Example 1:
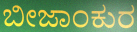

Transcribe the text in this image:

ಬೀಜಾಂಕುರ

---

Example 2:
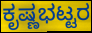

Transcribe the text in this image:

ಕೃಷ್ಣಭಟ್ಟರ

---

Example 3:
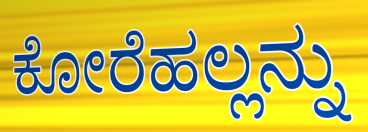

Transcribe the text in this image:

ಕೋರೆಹಲ್ಲನ್ನು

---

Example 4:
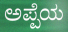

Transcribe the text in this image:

ಅಪ್ಪೆಯ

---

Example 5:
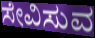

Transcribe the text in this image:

ಸೇವಿಸುವ